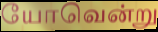
யோவென்று